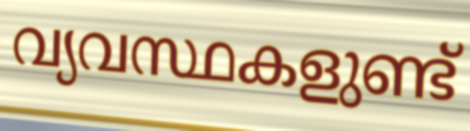
വ്യവസ്ഥകളുണ്ട്